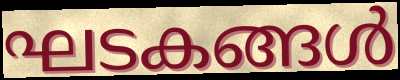
ഘടകങ്ങൾ